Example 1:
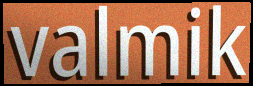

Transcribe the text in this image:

valmik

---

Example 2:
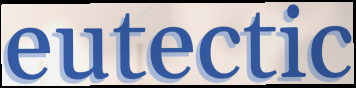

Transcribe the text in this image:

eutectic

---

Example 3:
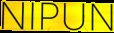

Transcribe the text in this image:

NIPUN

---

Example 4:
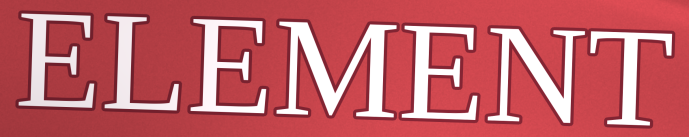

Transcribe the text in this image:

ELEMENT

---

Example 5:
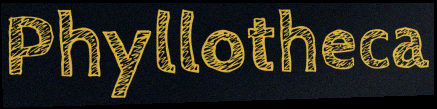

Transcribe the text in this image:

Phyllotheca